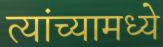
त्यांच्यामध्ये